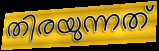
തിരയുന്നത്